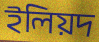
ইলিয়দ